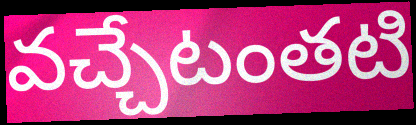
వచ్చేటంతటి